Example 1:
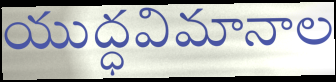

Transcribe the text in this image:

యుద్ధవిమానాల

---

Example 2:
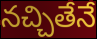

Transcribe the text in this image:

నచ్చితేనే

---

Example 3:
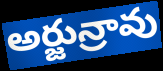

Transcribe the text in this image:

అర్జున్రావు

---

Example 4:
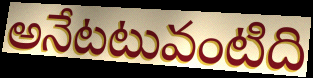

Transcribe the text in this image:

అనేటటువంటిది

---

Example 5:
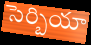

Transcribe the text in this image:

సెర్బియా